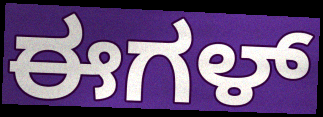
ಈಗಳ್